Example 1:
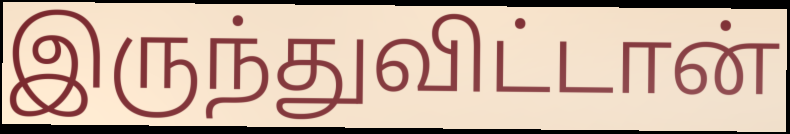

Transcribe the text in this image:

இருந்துவிட்டான்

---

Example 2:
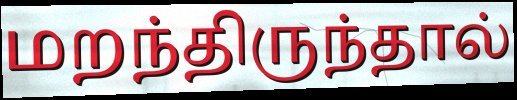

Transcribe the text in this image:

மறந்திருந்தால்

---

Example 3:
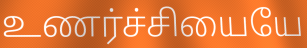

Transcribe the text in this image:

உணர்ச்சியையே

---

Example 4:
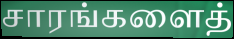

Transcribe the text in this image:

சாரங்களைத்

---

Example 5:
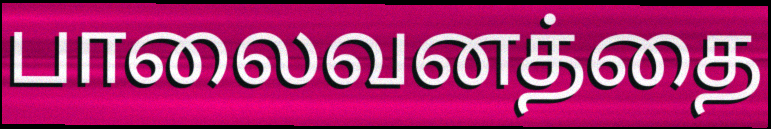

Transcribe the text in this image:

பாலைவனத்தை